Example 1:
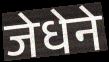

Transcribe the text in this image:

जेधेने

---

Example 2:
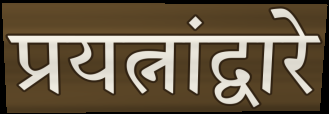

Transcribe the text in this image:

प्रयत्नांद्वारे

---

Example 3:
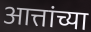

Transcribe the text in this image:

आत्तांच्या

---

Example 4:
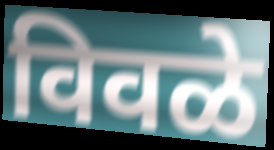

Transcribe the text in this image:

विवळे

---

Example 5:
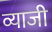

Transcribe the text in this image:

व्याजी